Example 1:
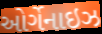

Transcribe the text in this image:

ઓર્ગેનાઇઝ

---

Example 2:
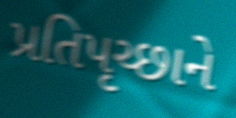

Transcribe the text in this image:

પ્રતિપૃચ્છાને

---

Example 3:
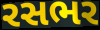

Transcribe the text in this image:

રસભર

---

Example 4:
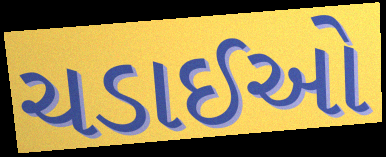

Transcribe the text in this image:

ચડાઈઓ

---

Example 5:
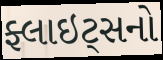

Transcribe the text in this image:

ફ્લાઇટ્સનો